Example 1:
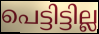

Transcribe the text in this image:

പെട്ടിട്ടില്ല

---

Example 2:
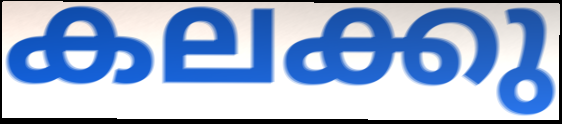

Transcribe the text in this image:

കലക്കു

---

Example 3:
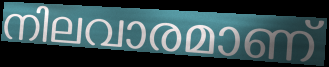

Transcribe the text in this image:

നിലവാരമാണ്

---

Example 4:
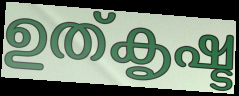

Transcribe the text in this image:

ഉത്കൃഷ്ട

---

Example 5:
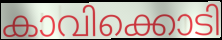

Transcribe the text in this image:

കാവിക്കൊടി